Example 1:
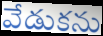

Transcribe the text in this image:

వేడుకను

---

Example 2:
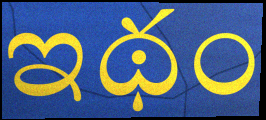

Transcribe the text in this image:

ఇథం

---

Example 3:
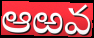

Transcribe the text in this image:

ఆఱవ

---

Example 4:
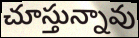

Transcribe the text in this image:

చూస్తున్నావు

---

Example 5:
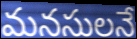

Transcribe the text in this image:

మనసులనే